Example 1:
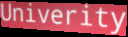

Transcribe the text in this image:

Univerity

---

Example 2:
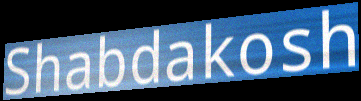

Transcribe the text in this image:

Shabdakosh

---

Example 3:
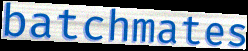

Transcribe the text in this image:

batchmates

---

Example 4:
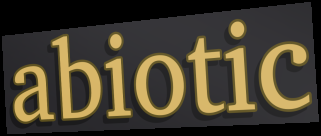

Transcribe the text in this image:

abiotic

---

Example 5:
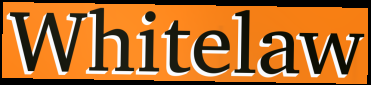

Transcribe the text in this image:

Whitelaw